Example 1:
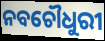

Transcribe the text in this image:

ନବଚୌଧୁରୀ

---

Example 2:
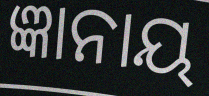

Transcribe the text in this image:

ଜ୍ଞାନାୟ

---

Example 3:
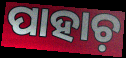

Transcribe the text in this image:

ପାହାଚ଼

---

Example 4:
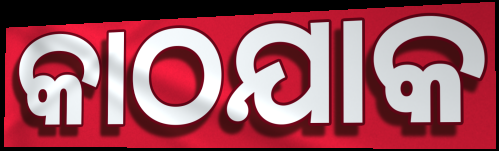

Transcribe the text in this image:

କାଠଯାକ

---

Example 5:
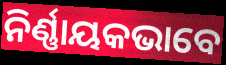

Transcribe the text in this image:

ନିର୍ଣ୍ଣାୟକଭାବେ